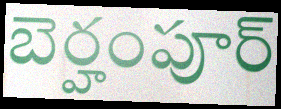
బెర్హంపూర్